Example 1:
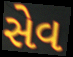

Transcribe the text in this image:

સેવ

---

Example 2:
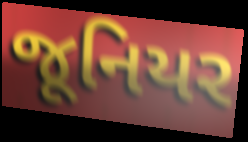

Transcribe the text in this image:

જૂનિયર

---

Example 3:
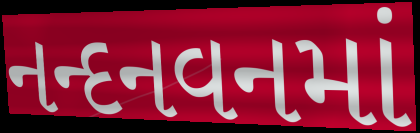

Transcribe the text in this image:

નન્દનવનમાં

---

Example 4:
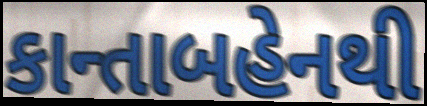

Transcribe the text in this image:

કાન્તાબહેનથી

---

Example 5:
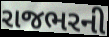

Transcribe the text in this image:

રાજભરની